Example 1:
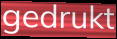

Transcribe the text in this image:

gedrukt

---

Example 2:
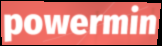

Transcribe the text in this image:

powermin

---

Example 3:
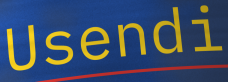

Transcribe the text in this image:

Usendi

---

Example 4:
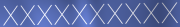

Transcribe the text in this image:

xxxxxxxxxx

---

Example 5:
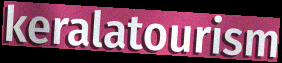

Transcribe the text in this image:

keralatourism